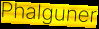
Phalguner